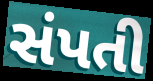
સંપતી